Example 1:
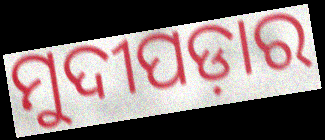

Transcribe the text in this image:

ମୁଦୀପଡ଼ାର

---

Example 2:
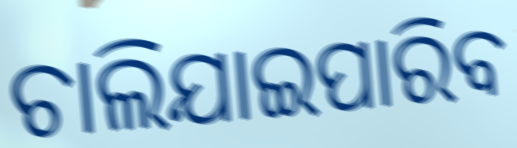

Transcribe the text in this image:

ଚାଲିଯାଇପାରିବ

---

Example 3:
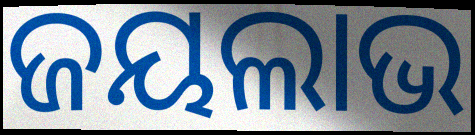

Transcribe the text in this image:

ଜୟଲାଭ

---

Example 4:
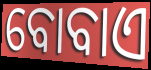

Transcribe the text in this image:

ବୋବାଏ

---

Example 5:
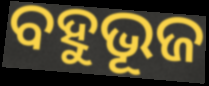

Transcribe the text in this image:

ବହୁଭୂଜ